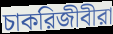
চাকরিজীবীরা